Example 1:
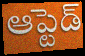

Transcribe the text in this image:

ఆప్టెడ్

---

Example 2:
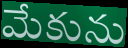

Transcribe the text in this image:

మేకును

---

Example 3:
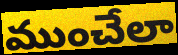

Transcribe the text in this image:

ముంచేలా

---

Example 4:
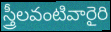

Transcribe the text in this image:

స్త్రీలవంటివారైరి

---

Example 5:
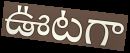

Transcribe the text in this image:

ఊటగా